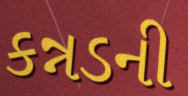
કન્નડની